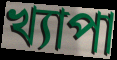
খ্যাপা